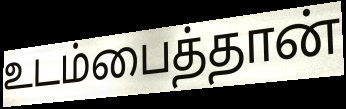
உடம்பைத்தான்